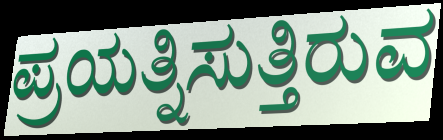
ಪ್ರಯತ್ನಿಸುತ್ತಿರುವ